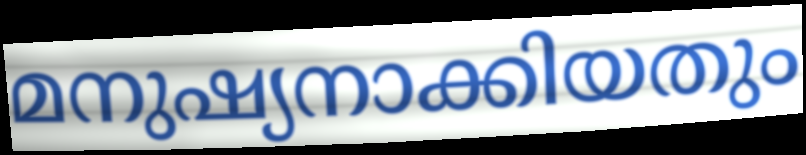
മനുഷ്യനാക്കിയതും